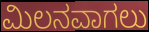
ಮಿಲನವಾಗಲು